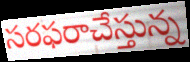
సరఫరాచేస్తున్న